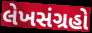
લેખસંગ્રહો